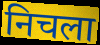
निचला